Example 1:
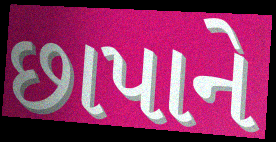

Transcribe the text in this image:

છાપાને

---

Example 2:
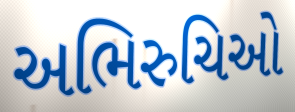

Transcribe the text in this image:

અભિરુચિઓ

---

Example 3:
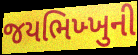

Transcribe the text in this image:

જયભિખ્ખુની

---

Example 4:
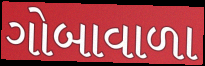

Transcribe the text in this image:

ગોબાવાળા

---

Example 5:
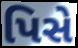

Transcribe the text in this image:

પિસે